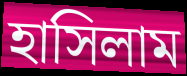
হাসিলাম